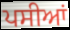
ਪਸੀਆਂ